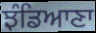
ਝੰਡਿਆਣਾ